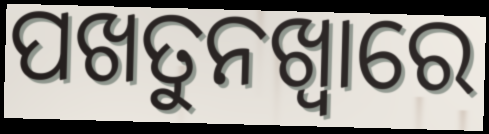
ପଖତୁନଖ୍ୱାରେ